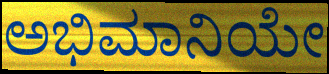
ಅಭಿಮಾನಿಯೇ